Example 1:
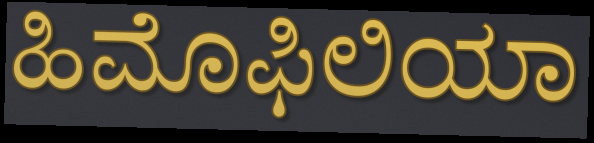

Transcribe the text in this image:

ಹಿಮೊಫಿಲಿಯಾ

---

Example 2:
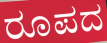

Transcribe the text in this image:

ರೂಪದ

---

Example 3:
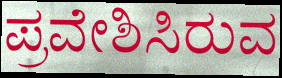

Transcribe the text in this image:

ಪ್ರವೇಶಿಸಿರುವ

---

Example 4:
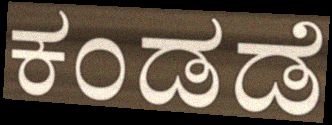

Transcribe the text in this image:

ಕಂಡಡೆ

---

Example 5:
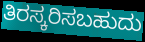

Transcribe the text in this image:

ತಿರಸ್ಕರಿಸಬಹುದು